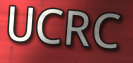
UCRC